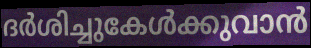
ദർശിച്ചുകേൾക്കുവാൻ